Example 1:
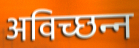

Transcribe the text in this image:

अविच्छन्न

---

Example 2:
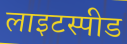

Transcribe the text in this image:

लाइटस्पीड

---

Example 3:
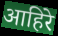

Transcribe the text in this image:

आहिरे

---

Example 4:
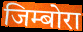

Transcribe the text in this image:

जिम्बोरा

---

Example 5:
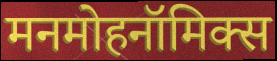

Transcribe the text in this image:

मनमोहनॉमिक्स